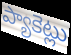
ప్యాకెట్లు